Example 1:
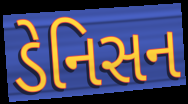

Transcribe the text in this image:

ડેનિસન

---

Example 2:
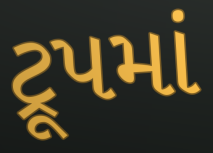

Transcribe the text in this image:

ટ્રૂપમાં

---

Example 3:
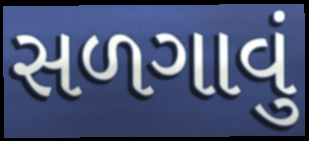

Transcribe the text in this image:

સળગાવું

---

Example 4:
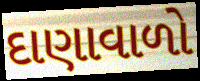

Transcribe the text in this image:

દાણાવાળો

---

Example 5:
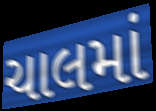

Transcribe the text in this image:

ચાલમાં